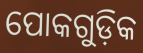
ପୋକଗୁଡ଼ିକ